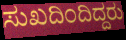
ಸುಖದಿಂದಿದ್ದರು